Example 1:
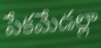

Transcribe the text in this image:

పేకమేడల్లా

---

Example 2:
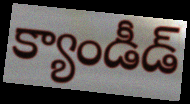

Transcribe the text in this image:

క్యాండీడ్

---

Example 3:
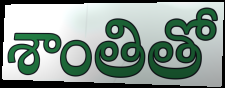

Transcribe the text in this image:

శాంతితో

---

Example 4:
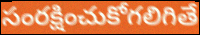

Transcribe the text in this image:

సంరక్షించుకోగలిగితే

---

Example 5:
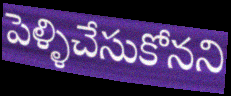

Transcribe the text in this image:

పెళ్ళిచేసుకోనని